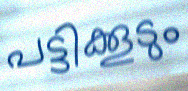
പട്ടിക്കൂടും